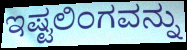
ಇಷ್ಟಲಿಂಗವನ್ನು